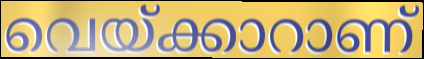
വെയ്ക്കാറാണ്